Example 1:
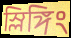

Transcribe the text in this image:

স্লিঙ্গিং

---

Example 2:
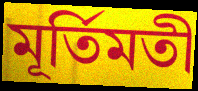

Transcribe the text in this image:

মূর্তিমতী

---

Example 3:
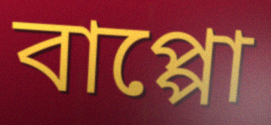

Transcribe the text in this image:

বাপ্পো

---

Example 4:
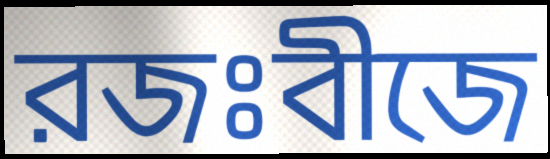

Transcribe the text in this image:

রজঃবীজে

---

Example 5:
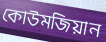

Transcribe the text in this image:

কোউমজিয়ান